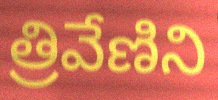
త్రివేణిని